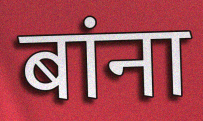
बांना